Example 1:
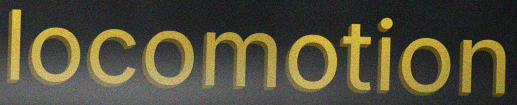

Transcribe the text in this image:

locomotion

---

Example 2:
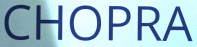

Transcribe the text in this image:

CHOPRA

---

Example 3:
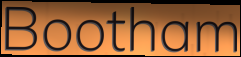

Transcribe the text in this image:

Bootham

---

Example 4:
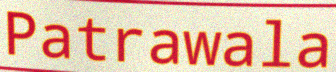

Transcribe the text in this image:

Patrawala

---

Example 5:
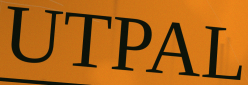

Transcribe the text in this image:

UTPAL